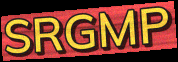
SRGMP